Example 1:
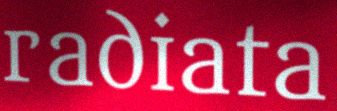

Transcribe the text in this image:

radiata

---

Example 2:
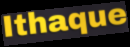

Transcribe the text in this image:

Ithaque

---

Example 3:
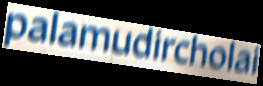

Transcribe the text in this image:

palamudircholai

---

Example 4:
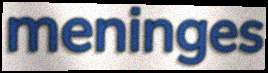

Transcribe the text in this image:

meninges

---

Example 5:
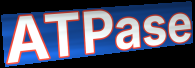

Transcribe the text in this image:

ATPase